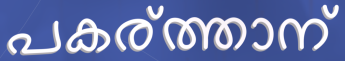
പകര്ത്താന്